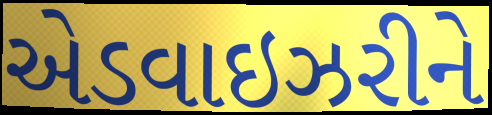
એડવાઇઝરીને